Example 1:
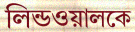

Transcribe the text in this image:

লিন্ডওয়ালকে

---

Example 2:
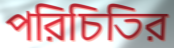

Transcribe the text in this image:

পরিচিতির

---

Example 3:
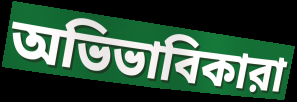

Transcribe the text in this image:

অভিভাবিকারা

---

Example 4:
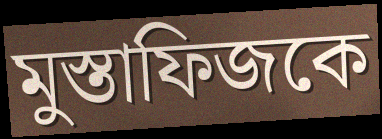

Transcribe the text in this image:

মুস্তাফিজকে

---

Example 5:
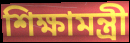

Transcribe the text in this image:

শিক্ষামন্ত্রী